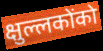
क्षुल्लकोंको